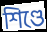
শিণ্ডে